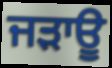
ਜੜਾਊ